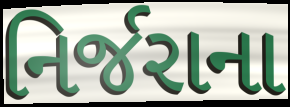
નિર્જરાના